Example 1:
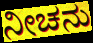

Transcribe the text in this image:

ನೀಚನು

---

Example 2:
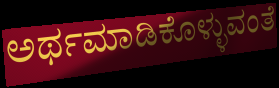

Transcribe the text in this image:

ಅರ್ಥಮಾಡಿಕೊಳ್ಳುವಂತೆ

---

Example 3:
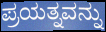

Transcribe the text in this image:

ಪ್ರಯತ್ನವನ್ನು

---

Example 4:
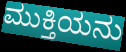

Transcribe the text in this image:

ಮುಕ್ತಿಯನು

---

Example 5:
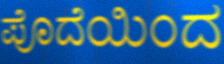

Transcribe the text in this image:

ಪೊದೆಯಿಂದ